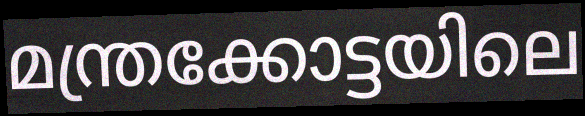
മന്ത്രക്കോട്ടയിലെ